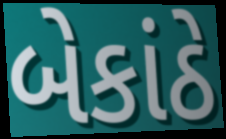
બેકાંઠે